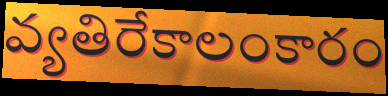
వ్యతిరేకాలంకారం